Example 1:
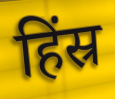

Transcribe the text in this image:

हिंस्र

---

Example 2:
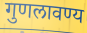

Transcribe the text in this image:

गुणलावण्य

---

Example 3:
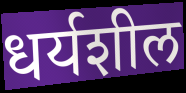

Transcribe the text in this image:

धर्यशील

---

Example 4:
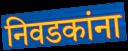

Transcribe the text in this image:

निवडकांना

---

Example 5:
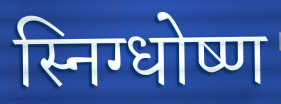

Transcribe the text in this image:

स्निग्धोष्ण